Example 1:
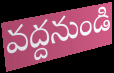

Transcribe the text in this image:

వద్దనుండి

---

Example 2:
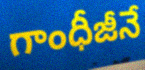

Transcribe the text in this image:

గాంధీజీనే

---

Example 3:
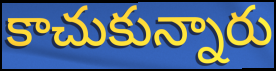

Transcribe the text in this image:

కాచుకున్నారు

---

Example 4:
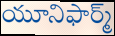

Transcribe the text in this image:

యూనిఫార్మ్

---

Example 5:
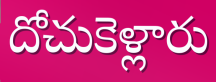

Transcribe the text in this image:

దోచుకెళ్లారు